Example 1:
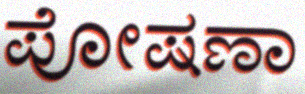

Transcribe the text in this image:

ಪೋಷಣಾ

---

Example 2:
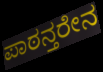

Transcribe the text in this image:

ಪಾಠನ್ತರೇನ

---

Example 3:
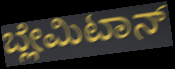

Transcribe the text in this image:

ಬ್ಲೇಮಿಟಾನ್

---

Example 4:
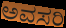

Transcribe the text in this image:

ಅವಸರಿ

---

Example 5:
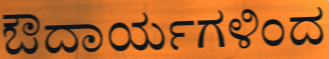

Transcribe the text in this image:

ಔದಾರ್ಯಗಳಿಂದ